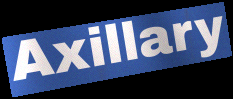
Axillary